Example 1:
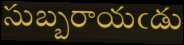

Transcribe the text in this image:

సుబ్బరాయఁడు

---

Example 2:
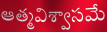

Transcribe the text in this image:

ఆత్మవిశ్వాసమే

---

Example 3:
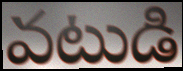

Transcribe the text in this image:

వటుడి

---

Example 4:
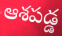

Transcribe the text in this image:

ఆశపడ్డ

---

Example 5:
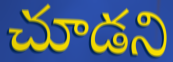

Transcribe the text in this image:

చూడని